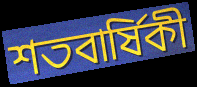
শতবার্ষিকী